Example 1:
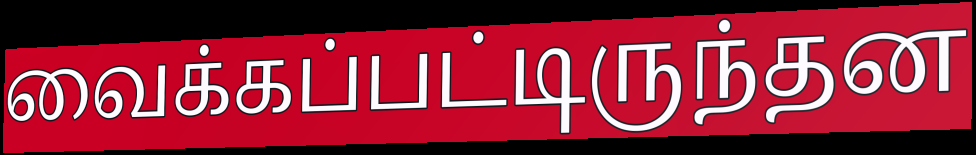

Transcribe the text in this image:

வைக்கப்பட்டிருந்தன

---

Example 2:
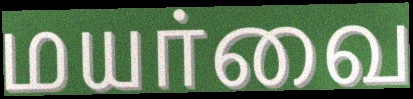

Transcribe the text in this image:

மயர்வை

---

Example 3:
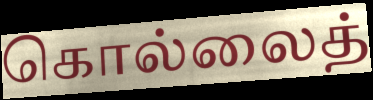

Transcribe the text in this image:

கொல்லைத்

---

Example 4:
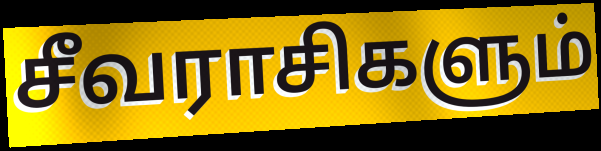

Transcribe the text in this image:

சீவராசிகளும்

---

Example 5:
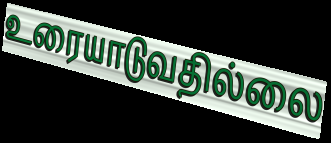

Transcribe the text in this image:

உரையாடுவதில்லை